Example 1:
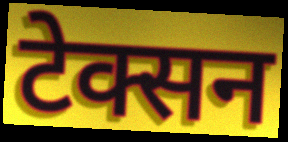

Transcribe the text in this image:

टेक्सन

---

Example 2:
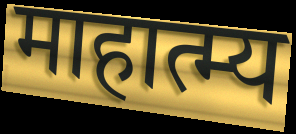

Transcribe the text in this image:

माहात्म्य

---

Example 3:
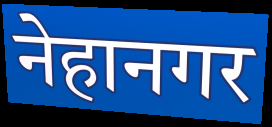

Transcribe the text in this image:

नेहानगर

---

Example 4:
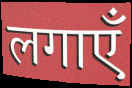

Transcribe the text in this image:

लगाएँ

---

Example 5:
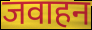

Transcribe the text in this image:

जवाहन